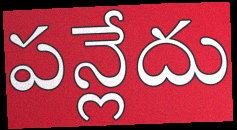
పన్లేదు